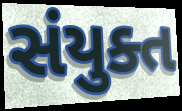
સંયુક્ત